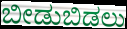
ಬೀಡುಬಿಡಲು